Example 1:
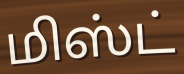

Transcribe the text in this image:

மிஸ்ட்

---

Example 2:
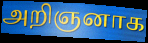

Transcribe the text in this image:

அறிஞனாக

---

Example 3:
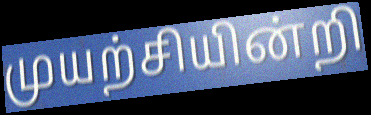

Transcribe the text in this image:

முயற்சியின்றி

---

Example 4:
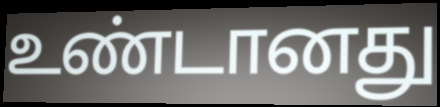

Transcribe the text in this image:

உண்டானது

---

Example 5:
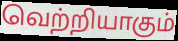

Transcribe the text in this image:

வெற்றியாகும்